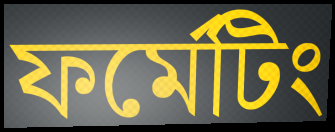
ফর্মেটিং